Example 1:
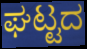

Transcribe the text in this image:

ಘಟ್ಟದ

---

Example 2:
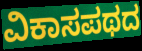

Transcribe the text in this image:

ವಿಕಾಸಪಥದ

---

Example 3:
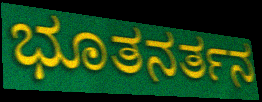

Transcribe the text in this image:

ಭೂತನರ್ತನ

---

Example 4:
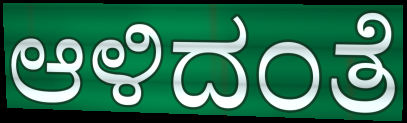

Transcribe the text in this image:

ಆಳಿದಂತೆ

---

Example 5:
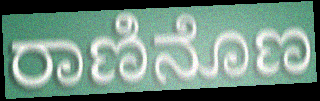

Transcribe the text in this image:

ರಾಣಿನೊಣ